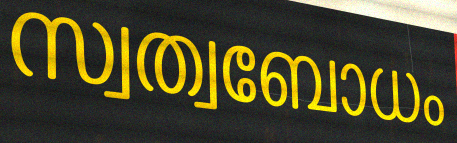
സ്വത്വബോധം